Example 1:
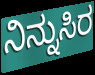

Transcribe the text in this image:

ನಿನ್ನುಸಿರ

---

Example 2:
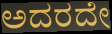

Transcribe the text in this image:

ಅದರದೇ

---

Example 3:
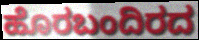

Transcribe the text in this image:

ಹೊರಬಂದಿರದ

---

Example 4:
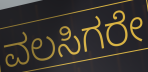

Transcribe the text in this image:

ವಲಸಿಗರೇ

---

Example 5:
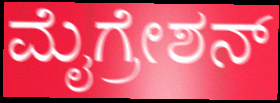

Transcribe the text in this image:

ಮೈಗ್ರೇಶನ್